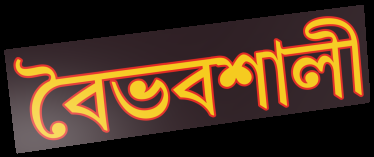
বৈভবশালী